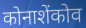
कोनाशेंकोव